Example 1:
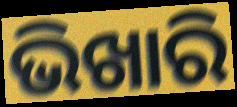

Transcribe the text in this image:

ଭିଖାରି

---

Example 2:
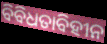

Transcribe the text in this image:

ବିବିଧତାବିହୀନ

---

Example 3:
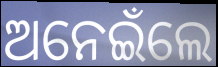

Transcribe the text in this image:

ଅନେଇଁଲେ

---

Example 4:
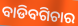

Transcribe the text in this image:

ବାଡିବଗିଚାର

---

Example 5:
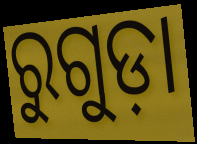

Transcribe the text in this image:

ରୁଗୁଡ଼ା